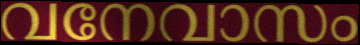
വനേവാസം